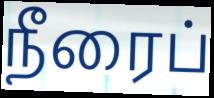
நீரைப்